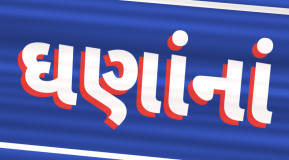
ઘણાંનાં